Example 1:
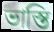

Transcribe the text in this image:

ভাস্তি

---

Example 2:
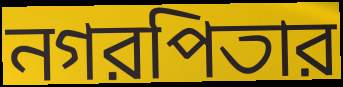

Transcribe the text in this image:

নগরপিতার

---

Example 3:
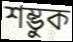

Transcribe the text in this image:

শম্ভুক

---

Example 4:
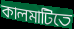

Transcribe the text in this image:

কালমাটিতে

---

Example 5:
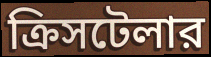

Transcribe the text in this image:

ক্রিসটেলার